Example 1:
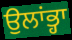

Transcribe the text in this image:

ਉਲਾਂਭ੍ਹਾ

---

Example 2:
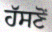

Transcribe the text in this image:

ਹੱਸਣੋਂ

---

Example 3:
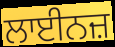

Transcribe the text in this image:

ਲਾਈਨਜ਼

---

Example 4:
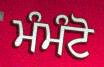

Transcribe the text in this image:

ਮੰਮੰਟੋ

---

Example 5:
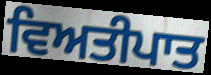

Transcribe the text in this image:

ਵਿਅਤੀਪਾਤ